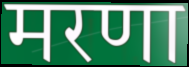
मरणा